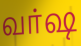
வர்ஷ